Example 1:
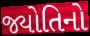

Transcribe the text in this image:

જ્યોતિનો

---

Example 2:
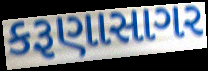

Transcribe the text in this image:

કરૂણાસાગર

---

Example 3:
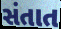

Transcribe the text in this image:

સંતાત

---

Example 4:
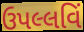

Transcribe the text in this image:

ઉપલ્લવિં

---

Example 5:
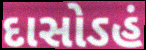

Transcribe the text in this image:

દાસોઽહં